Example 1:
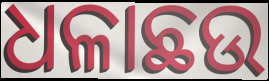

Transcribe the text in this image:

ଧଳାଛଉ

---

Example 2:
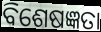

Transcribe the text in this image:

ବିଶେଷଜ୍ଞତା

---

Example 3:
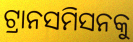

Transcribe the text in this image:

ଟ୍ରାନସମିସନକୁ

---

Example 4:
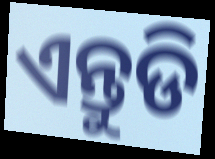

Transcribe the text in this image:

ଏନ୍ତୁଡି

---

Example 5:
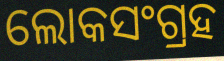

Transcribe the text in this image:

ଲୋକସଂଗ୍ରହ